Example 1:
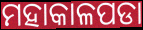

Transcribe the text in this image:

ମହାକାଳପଡା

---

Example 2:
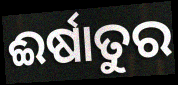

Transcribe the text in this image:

ଈର୍ଷାତୁର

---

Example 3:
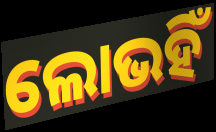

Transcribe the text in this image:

ଲୋଭହିଁ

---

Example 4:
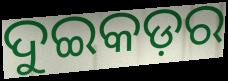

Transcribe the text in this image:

ଦୁଇକଡ଼ର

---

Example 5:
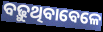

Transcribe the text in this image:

ବଢ଼ୁଥିବାବେଳେ